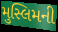
મુસ્લિમની